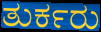
ತುರ್ಕರು